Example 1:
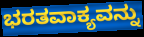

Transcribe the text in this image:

ಭರತವಾಕ್ಯವನ್ನು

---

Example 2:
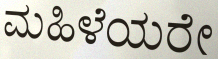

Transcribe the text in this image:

ಮಹಿಳೆಯರೇ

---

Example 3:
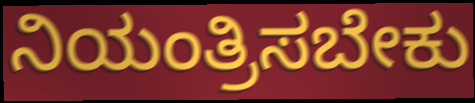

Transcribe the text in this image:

ನಿಯಂತ್ರಿಸಬೇಕು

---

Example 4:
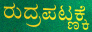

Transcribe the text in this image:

ರುದ್ರಪಟ್ಣಕ್ಕೆ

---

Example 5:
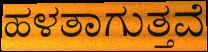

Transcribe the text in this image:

ಹಳತಾಗುತ್ತವೆ